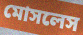
মোসলেস